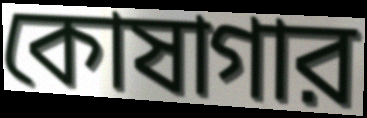
কোষাগার